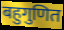
बहुगुणित